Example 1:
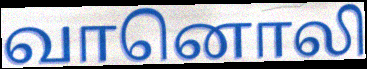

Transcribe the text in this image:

வானொலி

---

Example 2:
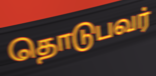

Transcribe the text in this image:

தொடுபவர்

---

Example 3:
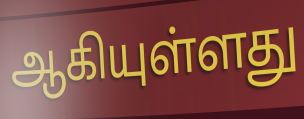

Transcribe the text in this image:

ஆகியுள்ளது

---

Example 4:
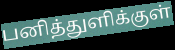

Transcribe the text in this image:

பனித்துளிக்குள்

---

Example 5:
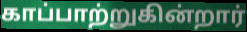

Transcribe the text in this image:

காப்பாற்றுகின்றார்